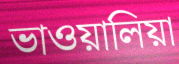
ভাওয়ালিয়া